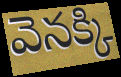
వెనక్కి